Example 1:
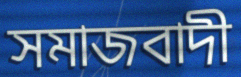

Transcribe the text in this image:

সমাজবাদী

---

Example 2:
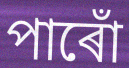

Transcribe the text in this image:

পাৰোঁ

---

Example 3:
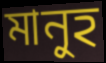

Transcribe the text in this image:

মানুহ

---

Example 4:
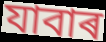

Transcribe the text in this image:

যাবাৰ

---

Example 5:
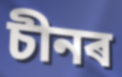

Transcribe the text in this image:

চীনৰ